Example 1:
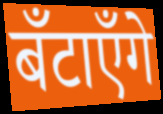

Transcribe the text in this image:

बँटाएँगे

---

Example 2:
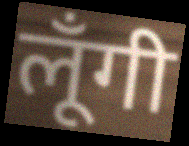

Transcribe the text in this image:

लूँगी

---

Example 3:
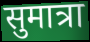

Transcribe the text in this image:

सुमात्रा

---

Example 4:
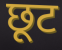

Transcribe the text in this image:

छूट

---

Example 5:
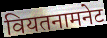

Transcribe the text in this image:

वियतनामनेट